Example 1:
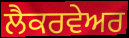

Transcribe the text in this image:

ਲੈਕਰਵੇਅਰ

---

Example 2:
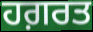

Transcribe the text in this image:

ਹਗ਼ਰਤ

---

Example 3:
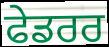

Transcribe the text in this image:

ਫੇਡਰਰ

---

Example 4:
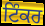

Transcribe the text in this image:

ਟਿੰਕਰ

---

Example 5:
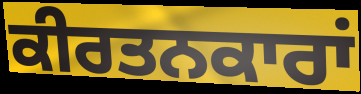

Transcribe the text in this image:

ਕੀਰਤਨਕਾਰਾਂ